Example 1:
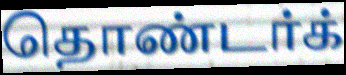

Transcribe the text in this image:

தொண்டர்க்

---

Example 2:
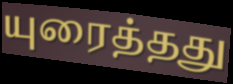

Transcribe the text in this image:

யுரைத்தது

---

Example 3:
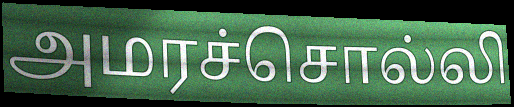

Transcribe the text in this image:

அமரச்சொல்லி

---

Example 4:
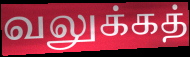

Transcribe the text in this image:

வலுக்கத்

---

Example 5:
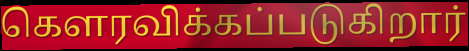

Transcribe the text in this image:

கௌரவிக்கப்படுகிறார்